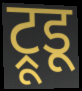
ट्रूडू